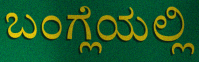
ಬಂಗ್ಲೆಯಲ್ಲಿ